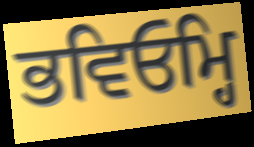
ਭਵਿਓਮ੍ਹਿ